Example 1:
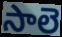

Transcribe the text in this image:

సాలె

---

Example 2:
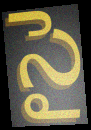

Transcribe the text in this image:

సై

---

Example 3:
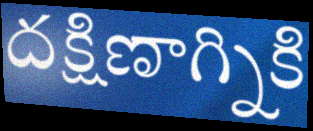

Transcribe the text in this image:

దక్షిణాగ్నికి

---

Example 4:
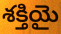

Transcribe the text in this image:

శక్తియై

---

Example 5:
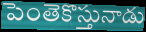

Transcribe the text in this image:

పెంతెకొస్తునాడు